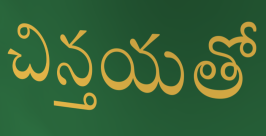
చిన్తయతో